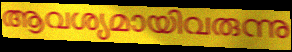
ആവശ്യമായിവരുന്നു